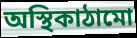
অস্থিকাঠামো